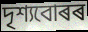
দৃশ্যবোৰৰ